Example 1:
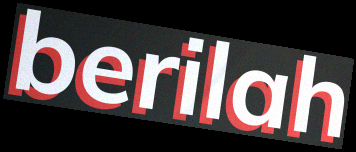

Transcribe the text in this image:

berilah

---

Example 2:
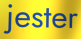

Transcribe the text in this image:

jester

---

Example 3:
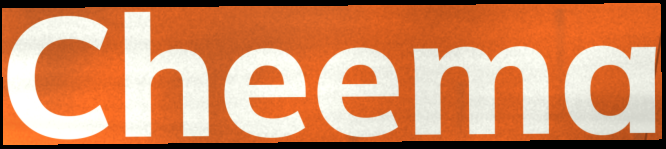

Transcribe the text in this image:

Cheema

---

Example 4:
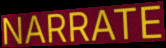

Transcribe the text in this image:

NARRATE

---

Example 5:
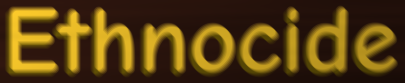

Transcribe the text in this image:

Ethnocide